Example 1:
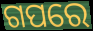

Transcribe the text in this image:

ଗପରେ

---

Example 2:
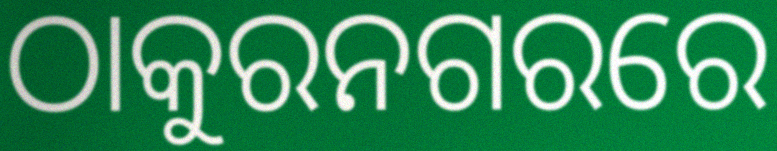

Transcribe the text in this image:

ଠାକୁରନଗରରେ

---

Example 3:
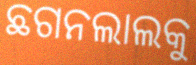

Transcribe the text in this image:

ଛଗନଲାଲକୁ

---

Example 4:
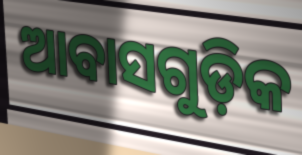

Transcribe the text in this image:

ଆବାସଗୁଡ଼ିକ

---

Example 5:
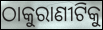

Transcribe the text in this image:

ଠାକୁରାଣୀଟିକୁ